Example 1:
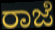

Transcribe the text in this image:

ರಾಜೆ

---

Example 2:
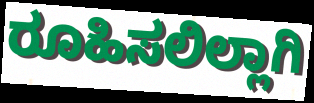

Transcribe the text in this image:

ರೂಹಿಸಲಿಲ್ಲಾಗಿ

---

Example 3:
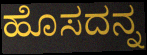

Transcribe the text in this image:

ಹೊಸದನ್ನ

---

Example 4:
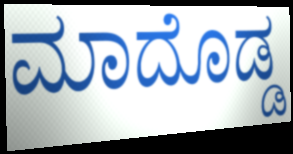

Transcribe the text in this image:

ಮಾದೊಡ್ಡ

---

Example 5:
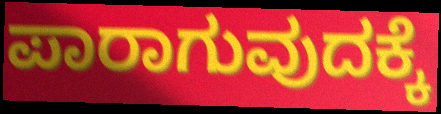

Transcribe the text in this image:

ಪಾರಾಗುವುದಕ್ಕೆ